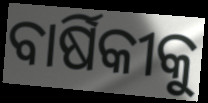
ବାର୍ଷିକୀକୁ